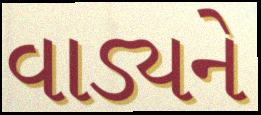
વાડ્યને